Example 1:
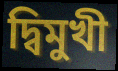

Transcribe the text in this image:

দ্বিমুখী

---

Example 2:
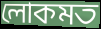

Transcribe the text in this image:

লোকমত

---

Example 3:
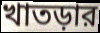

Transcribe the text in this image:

খাতড়ার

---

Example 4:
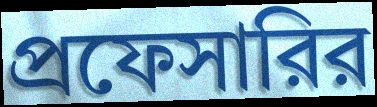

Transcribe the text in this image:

প্রফেসারির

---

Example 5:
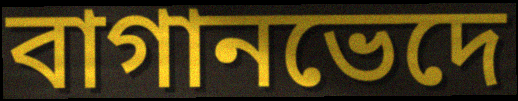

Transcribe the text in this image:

বাগানভেদে